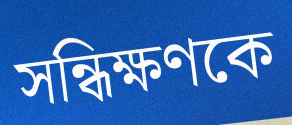
সন্ধিক্ষণকে